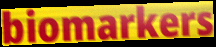
biomarkers